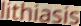
lithiasis